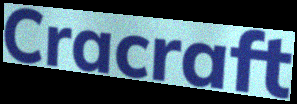
Cracraft